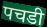
पचडी